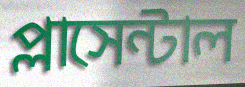
প্লাসেন্টাল